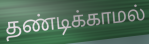
தண்டிக்காமல்